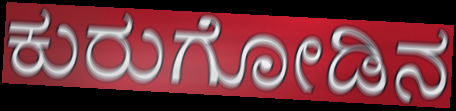
ಕುರುಗೋಡಿನ